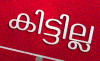
കിട്ടില്ല